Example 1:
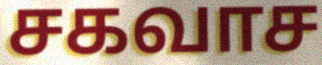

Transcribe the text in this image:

சகவாச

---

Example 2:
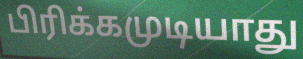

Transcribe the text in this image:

பிரிக்கமுடியாது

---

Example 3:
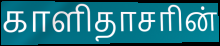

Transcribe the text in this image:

காளிதாசரின்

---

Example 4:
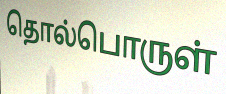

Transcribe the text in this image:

தொல்பொருள்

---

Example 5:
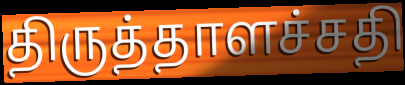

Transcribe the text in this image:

திருத்தாளச்சதி